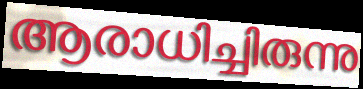
ആരാധിച്ചിരുന്നു